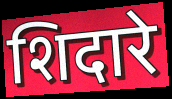
शिदारे